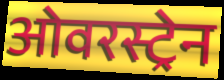
ओवरस्ट्रेन